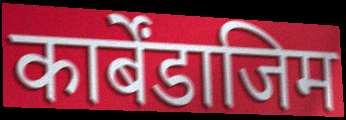
कार्बेंडाजिम